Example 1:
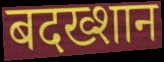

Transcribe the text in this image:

बदख्शान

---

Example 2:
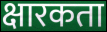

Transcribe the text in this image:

क्षारकता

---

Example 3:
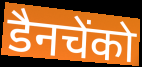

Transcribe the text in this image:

डैनचेंको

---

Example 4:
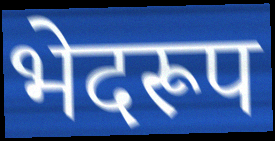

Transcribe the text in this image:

भेदरूप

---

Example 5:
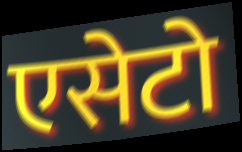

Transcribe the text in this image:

एसेटो